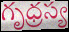
గృధ్రస్య